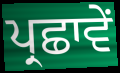
ਪ੍ਰਛਾਵੇਂ